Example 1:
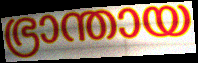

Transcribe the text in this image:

ഭ്രാന്തായ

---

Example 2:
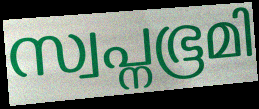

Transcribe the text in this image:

സ്വപ്നഭൂമി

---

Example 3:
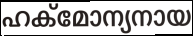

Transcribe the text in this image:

ഹക്മോന്യനായ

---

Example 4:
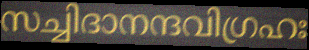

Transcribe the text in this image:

സച്ചിദാനന്ദവിഗ്രഹഃ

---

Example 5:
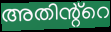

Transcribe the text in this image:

അതിന്റ്റെ